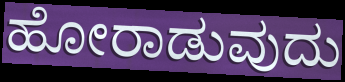
ಹೋರಾಡುವುದು